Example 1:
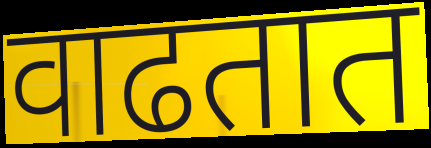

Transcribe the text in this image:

वाढतात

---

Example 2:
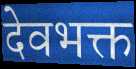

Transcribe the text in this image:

देवभक्त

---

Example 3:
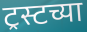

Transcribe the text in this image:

ट्रस्टच्या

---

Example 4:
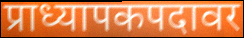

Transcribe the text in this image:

प्राध्यापकपदावर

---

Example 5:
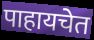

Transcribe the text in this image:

पाहायचेत